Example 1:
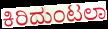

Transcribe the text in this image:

ಕಿರಿದುಂಟಲಾ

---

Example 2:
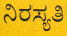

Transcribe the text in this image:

ನಿರಸ್ಯತಿ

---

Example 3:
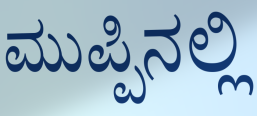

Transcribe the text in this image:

ಮುಪ್ಪಿನಲ್ಲಿ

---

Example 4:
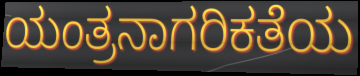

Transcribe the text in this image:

ಯಂತ್ರನಾಗರಿಕತೆಯ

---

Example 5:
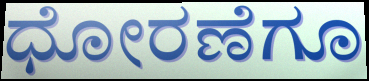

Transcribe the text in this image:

ಧೋರಣೆಗೂ